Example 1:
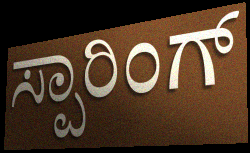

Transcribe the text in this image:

ಸ್ಪಾರಿಂಗ್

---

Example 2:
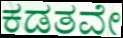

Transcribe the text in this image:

ಕಡತವೇ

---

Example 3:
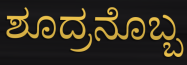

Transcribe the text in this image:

ಶೂದ್ರನೊಬ್ಬ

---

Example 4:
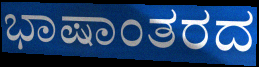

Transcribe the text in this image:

ಭಾಷಾಂತರದ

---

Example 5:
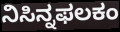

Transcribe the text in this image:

ನಿಸಿನ್ನಫಲಕಂ